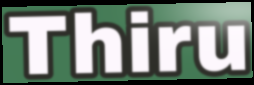
Thiru